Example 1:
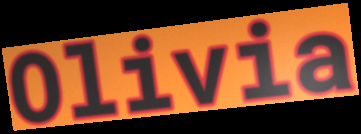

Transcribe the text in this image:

Olivia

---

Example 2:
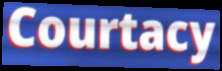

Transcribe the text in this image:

Courtacy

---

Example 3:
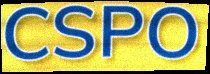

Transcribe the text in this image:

CSPO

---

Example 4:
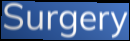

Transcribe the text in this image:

Surgery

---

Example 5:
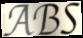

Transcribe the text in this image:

ABS